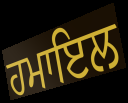
ਹਮਾਇਲ